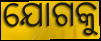
ଯୋଗକୁ